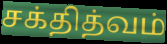
சக்தித்வம்